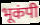
भूकंपी